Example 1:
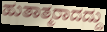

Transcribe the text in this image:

ಹುತಾತ್ಮರಾದದ್ದು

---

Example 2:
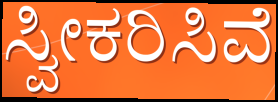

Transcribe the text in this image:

ಸ್ವೀಕರಿಸಿವೆ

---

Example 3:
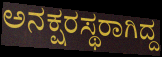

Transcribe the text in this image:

ಅನಕ್ಷರಸ್ಥರಾಗಿದ್ದ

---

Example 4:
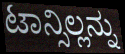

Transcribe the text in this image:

ಟಾನ್ಸಿಲ್ಲನ್ನು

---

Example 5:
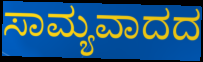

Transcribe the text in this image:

ಸಾಮ್ಯವಾದದ